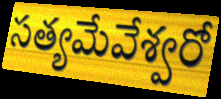
సత్యమేవేశ్వరో